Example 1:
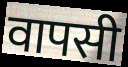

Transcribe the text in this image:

वापसी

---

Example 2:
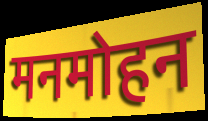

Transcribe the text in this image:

मनमोहन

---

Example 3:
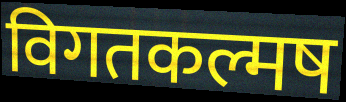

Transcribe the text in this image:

विगतकल्मष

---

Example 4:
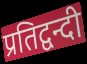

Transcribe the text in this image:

प्रतिद्वन्दी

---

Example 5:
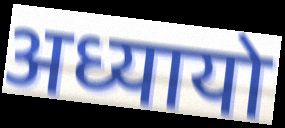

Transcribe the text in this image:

अध्यायो